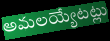
అమలయ్యేటట్లు